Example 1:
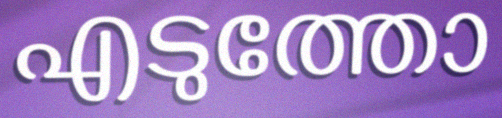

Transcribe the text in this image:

എടുത്തോ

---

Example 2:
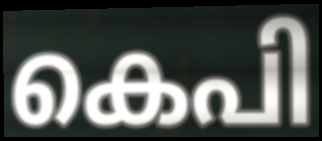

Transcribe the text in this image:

കെപി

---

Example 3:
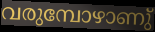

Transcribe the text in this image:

വരുമ്പോഴാണു്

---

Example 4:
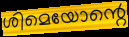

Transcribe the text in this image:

ശിമെയോന്റെ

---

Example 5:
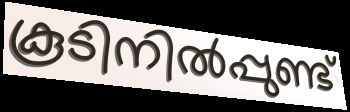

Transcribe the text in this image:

കൂടിനിൽപ്പുണ്ട്